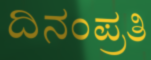
ದಿನಂಪ್ರತಿ